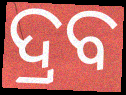
ଦ୍ରବ